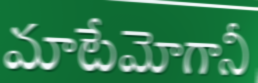
మాటేమోగానీ